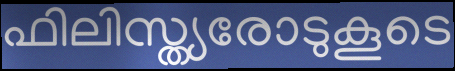
ഫിലിസ്ത്യരോടുകൂടെ